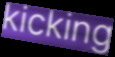
kicking